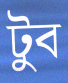
টুব